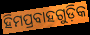
ହିମପ୍ରବାହଗୁଡ଼ିକ